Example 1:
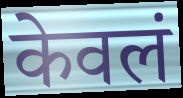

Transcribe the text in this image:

केवलं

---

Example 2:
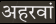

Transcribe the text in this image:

अहरवां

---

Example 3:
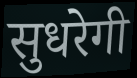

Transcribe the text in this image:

सुधरेगी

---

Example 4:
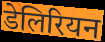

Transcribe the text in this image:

डेलिरियन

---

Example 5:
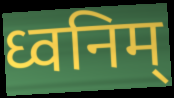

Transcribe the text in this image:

ध्वनिम्